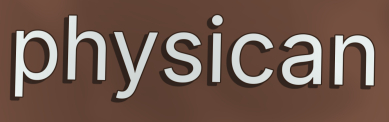
physican